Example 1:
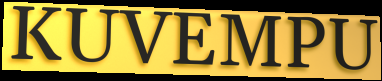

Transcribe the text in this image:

KUVEMPU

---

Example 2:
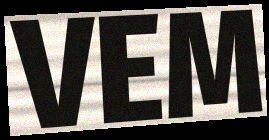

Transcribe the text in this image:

VEM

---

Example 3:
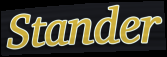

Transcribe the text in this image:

Stander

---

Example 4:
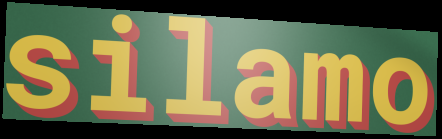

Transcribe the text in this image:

silamo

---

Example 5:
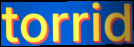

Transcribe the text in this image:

torrid